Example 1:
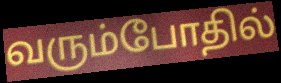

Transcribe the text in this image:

வரும்போதில்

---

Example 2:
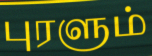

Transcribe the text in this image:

புரளும்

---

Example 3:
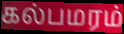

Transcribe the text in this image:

கல்பமரம்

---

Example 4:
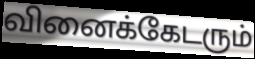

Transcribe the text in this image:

வினைக்கேடரும்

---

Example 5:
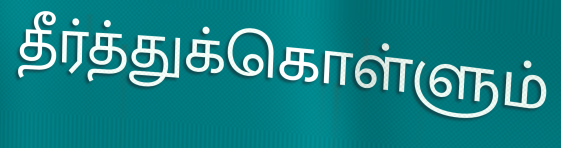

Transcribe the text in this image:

தீர்த்துக்கொள்ளும்